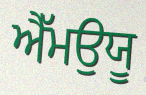
ਐੱਮਉਯੂ